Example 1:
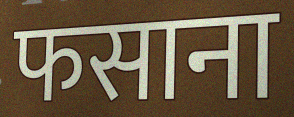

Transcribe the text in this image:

फसाना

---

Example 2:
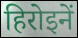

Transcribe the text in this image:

हिरोइनें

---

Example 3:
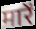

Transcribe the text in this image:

मारें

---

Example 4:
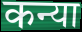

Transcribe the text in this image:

कन्या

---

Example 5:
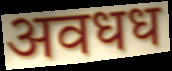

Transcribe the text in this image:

अवधध